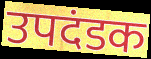
उपदंडक